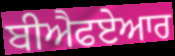
ਬੀਐਫਏਆਰ